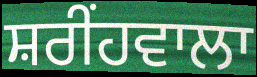
ਸ਼ਰੀਂਹਵਾਲਾ